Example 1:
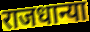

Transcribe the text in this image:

राजधान्या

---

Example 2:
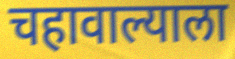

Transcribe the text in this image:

चहावाल्याला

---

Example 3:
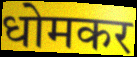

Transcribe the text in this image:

धोमकर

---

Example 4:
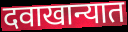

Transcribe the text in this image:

दवाखान्यात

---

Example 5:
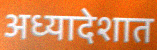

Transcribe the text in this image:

अध्यादेशात